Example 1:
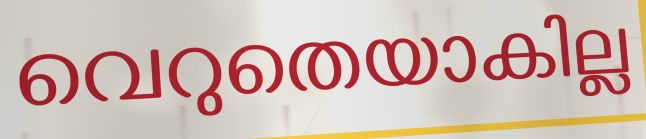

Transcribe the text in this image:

വെറുതെയാകില്ല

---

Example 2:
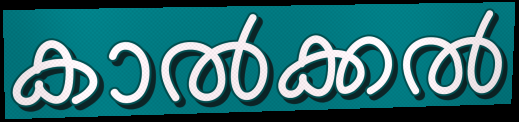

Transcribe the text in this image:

കാൽക്കൽ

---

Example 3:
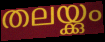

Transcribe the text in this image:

തലയ്ക്കും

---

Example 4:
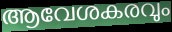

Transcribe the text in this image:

ആവേശകരവും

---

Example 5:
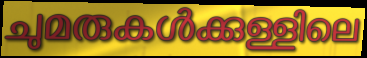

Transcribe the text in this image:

ചുമരുകൾക്കുള്ളിലെ